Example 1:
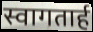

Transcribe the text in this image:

स्वागतार्ह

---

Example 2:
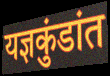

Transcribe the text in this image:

यज्ञकुंडांत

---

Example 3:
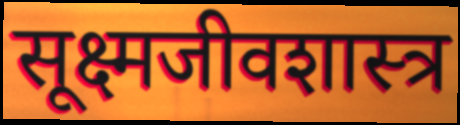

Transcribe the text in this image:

सूक्ष्मजीवशास्त्र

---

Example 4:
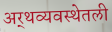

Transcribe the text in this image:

अर्थव्यवस्थेतली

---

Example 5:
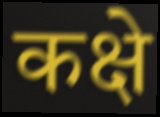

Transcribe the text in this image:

कक्षे